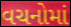
વચનોમાં